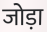
जोड़ा